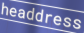
headdress